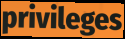
privileges